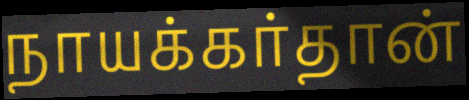
நாயக்கர்தான்